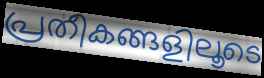
പ്രതീകങ്ങളിലൂടെ